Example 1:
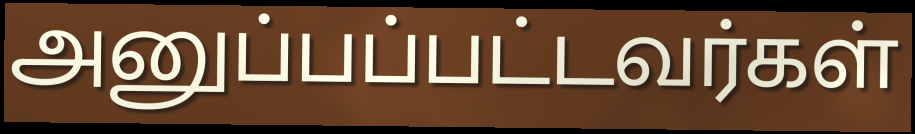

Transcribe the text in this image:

அனுப்பப்பட்டவர்கள்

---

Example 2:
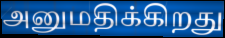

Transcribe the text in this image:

அனுமதிக்கிறது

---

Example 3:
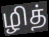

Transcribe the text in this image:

ழித்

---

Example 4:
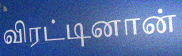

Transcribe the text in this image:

விரட்டினான்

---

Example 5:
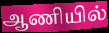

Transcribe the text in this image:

ஆணியில்